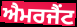
ਐਮਰਜੈਂਟ